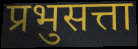
प्रभुसत्ता